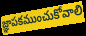
జ్ఞాపకముంచుకోవాలి